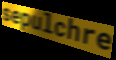
sepulchre